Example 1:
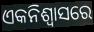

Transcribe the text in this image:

ଏକନିଶ୍ୱାସରେ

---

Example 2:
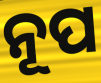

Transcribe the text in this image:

ନୂପ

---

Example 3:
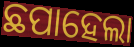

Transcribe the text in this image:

ଛପାହେଲା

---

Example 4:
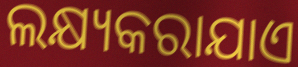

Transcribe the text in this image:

ଲକ୍ଷ୍ୟକରାଯାଏ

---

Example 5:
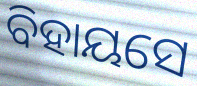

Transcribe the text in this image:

ବିହାୟସେ